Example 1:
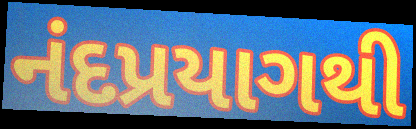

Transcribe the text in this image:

નંદપ્રયાગથી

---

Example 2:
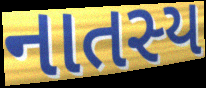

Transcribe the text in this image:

નાતસ્ય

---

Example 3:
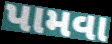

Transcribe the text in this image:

પામવા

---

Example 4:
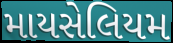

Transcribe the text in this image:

માયસેલિયમ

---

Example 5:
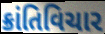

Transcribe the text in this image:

ક્રાંતિવિચાર